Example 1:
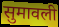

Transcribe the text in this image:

सुमावली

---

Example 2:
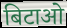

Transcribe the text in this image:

बिटाओ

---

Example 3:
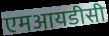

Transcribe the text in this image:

एमआयडीसी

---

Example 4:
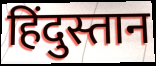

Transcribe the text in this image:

हिंदुस्‍तान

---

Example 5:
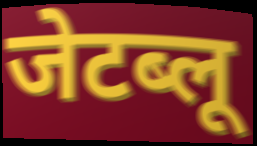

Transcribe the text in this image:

जेटब्लू